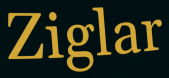
Ziglar